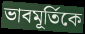
ভাবমূর্তিকে